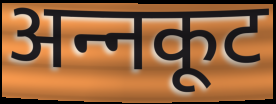
अन्नकूट